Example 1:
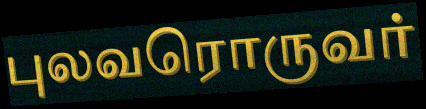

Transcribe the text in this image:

புலவரொருவர்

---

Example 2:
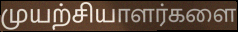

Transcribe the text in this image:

முயற்சியாளர்களை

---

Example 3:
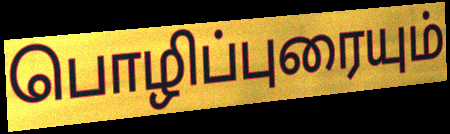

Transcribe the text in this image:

பொழிப்புரையும்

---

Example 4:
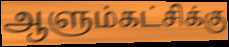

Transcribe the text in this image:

ஆளும்கட்சிக்கு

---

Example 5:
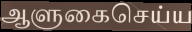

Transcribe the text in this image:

ஆளுகைசெய்ய